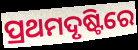
ପ୍ରଥମଦୃଷ୍ଟିରେ